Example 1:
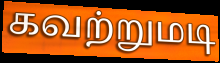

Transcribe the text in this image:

கவற்றுமடி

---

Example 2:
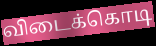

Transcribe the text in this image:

விடைக்கொடி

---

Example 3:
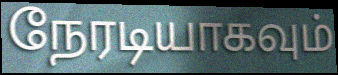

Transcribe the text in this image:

நேரடியாகவும்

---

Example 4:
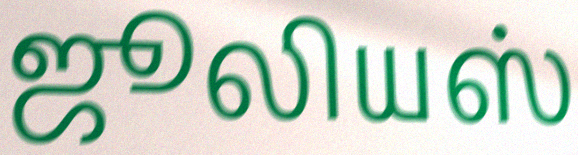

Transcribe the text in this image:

ஜூலியஸ்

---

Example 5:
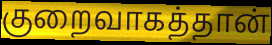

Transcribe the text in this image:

குறைவாகத்தான்